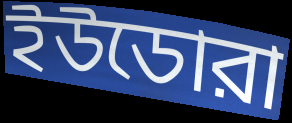
ইউডোরা